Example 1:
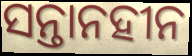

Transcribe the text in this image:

ସନ୍ତାନହୀନ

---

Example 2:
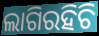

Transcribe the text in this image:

ଲାଗିରହିଚି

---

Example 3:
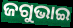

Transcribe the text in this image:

ଜଗୁଭାଇ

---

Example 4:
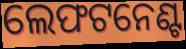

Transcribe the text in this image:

ଲେଫଟନେଣ୍ଟ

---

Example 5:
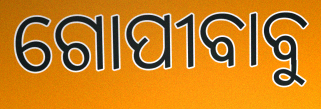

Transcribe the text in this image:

ଗୋପୀବାବୁ